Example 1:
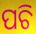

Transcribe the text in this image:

ପଚି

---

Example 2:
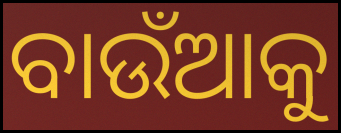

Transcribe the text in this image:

ବାଉଁଆକୁ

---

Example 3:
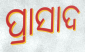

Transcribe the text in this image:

ପ୍ରାସାଦ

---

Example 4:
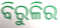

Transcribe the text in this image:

ବିରୁଳିର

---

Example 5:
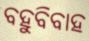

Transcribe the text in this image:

ବହୁବିବାହ